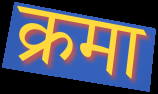
क्रमा